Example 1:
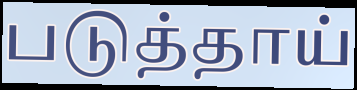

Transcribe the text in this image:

படுத்தாய்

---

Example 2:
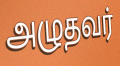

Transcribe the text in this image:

அழுதவர்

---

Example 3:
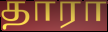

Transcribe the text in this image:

தாரா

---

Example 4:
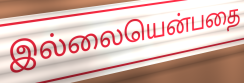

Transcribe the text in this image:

இல்லையென்பதை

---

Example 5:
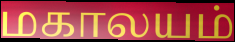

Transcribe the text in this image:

மகாலயம்